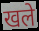
खले